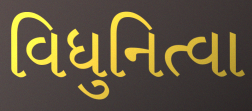
વિધુનિત્વા